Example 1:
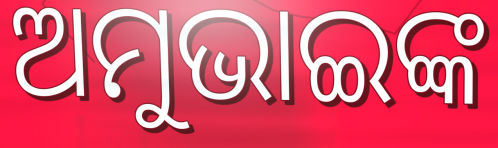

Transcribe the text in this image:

ଅମୁଭାଇଙ୍କ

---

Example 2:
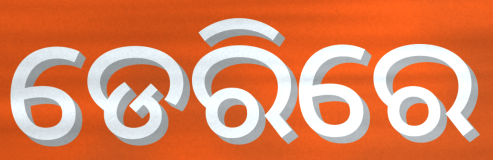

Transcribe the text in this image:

ଡେରିରେ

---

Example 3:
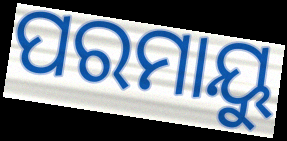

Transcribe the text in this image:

ପରମାୟୁ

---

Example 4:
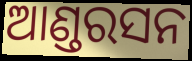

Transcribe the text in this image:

ଆଣ୍ଡରସନ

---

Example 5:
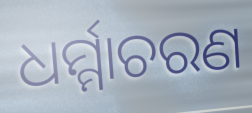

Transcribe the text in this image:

ଧର୍ମ୍ମାଚରଣ